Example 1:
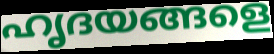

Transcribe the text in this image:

ഹൃദയങ്ങളെ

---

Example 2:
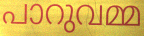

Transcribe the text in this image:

പാറുവമ്മ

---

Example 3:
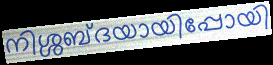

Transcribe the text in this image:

നിശ്ശബ്ദയായിപ്പോയി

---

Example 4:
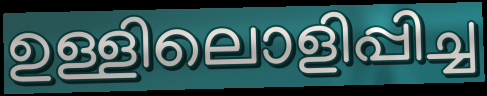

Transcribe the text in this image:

ഉള്ളിലൊളിപ്പിച്ച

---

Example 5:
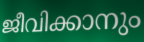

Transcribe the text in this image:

ജീവിക്കാനും